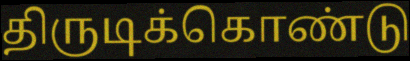
திருடிக்கொண்டு